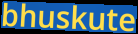
bhuskute